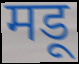
मडू